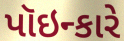
પૉઇન્કારે